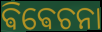
ଵିଵେଚନା